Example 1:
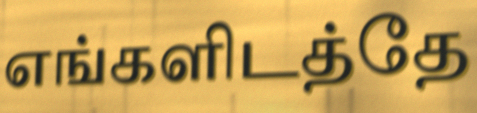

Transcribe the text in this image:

எங்களிடத்தே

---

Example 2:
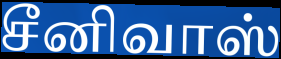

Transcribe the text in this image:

சீனிவாஸ்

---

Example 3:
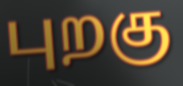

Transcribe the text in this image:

புறகு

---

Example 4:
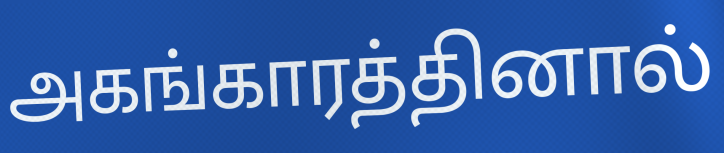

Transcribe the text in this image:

அகங்காரத்தினால்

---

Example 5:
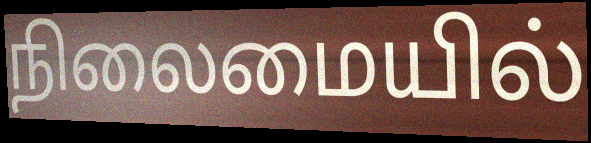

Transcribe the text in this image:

நிலைமையில்